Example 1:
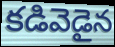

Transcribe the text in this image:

కడివెడైన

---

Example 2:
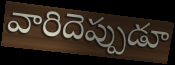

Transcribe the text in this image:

వారిదెప్పుడూ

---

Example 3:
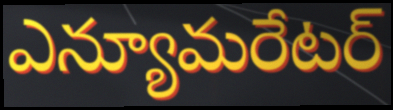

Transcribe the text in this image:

ఎన్యూమరేటర్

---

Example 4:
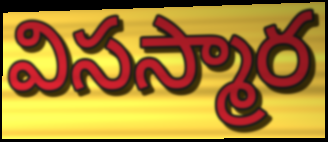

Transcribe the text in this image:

విసస్మార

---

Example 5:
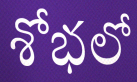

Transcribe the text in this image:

శోభలో